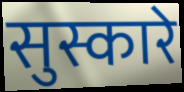
सुस्कारे